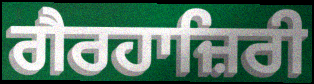
ਗੈਰਹਾਜ਼ਿਰੀ